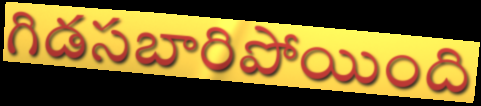
గిడసబారిపోయింది